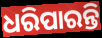
ଧରିପାରନ୍ତି